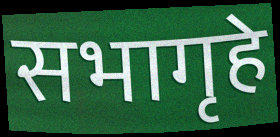
सभागृहे